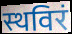
स्थविरं